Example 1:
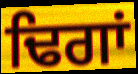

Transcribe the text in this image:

ਢਿਗਾਂ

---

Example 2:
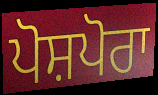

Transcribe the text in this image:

ਪੋਸ਼ਪੋਰਾ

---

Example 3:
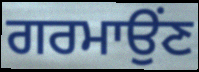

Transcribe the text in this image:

ਗਰਮਾਉਂਣ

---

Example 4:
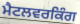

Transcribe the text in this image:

ਮੈਟਲਵਰਕਿੰਗ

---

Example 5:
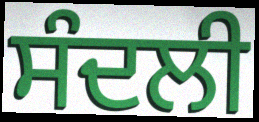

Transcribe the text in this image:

ਸੰਦਲੀ